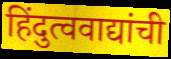
हिंदुत्ववाद्यांची